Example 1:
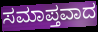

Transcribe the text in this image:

ಸಮಾಪ್ತವಾದ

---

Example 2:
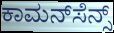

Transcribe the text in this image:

ಕಾಮನ್‌ಸೆನ್ಸ್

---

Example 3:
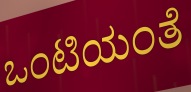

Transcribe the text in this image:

ಒಂಟಿಯಂತೆ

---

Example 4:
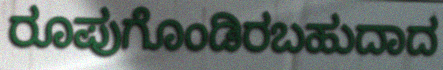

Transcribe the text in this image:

ರೂಪುಗೊಂಡಿರಬಹುದಾದ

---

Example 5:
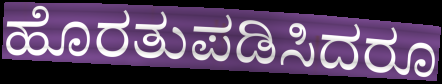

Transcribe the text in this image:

ಹೊರತುಪಡಿಸಿದರೂ